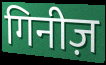
गिनीज़